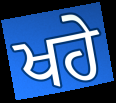
ਖਹੇ